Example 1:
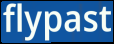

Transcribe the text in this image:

flypast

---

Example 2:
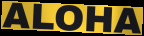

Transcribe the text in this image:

ALOHA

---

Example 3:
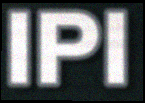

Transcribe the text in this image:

IPI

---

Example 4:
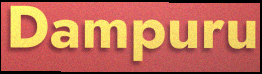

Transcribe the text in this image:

Dampuru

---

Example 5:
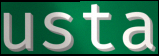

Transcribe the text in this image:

usta